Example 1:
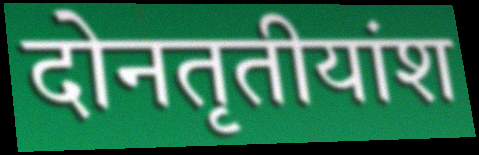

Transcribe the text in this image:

दोनतृतीयांश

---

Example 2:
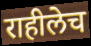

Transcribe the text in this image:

राहीलेच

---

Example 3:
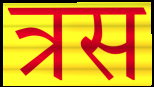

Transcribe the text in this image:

त्रस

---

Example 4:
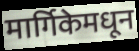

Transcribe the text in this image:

मार्गिकेमधून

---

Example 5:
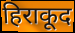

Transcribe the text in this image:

हिराकूद